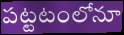
పట్టటంలోనూ